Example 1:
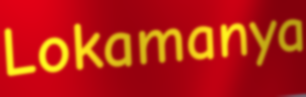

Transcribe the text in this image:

Lokamanya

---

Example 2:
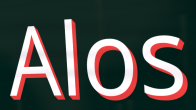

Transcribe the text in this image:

Alos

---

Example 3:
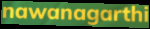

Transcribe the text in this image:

nawanagarthi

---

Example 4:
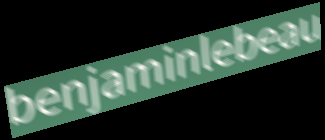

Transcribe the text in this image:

benjaminlebeau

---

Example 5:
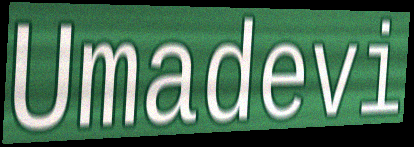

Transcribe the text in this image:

Umadevi